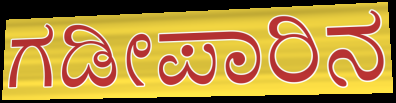
ಗಡೀಪಾರಿನ